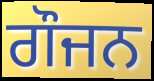
ਗੌਜਨ